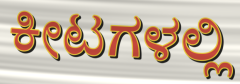
ಕೀಟಗಳಲ್ಲಿ